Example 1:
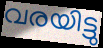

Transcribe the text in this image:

വരയിട്ടു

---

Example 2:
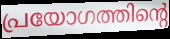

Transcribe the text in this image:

പ്രയോഗത്തിന്റെ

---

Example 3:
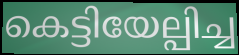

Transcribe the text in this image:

കെട്ടിയേല്പിച്ച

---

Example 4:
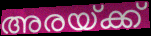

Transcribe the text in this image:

അരയ്‌ക്ക്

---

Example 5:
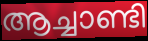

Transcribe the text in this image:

ആച്ചാണ്ടി